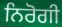
ਨਿਰੋਗੀ